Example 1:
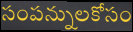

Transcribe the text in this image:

సంపన్నులకోసం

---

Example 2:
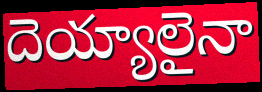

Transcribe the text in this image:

దెయ్యాలైనా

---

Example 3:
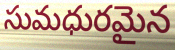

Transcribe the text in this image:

సుమధురమైన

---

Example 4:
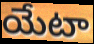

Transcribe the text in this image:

యేటా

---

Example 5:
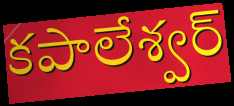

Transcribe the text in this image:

కపాలేశ్వర్